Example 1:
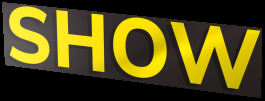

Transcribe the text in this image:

SHOW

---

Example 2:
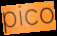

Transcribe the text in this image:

pico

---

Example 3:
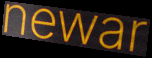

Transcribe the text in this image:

newar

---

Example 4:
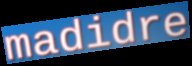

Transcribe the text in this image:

madidre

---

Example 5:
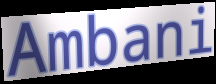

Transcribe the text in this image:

Ambani